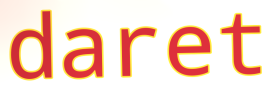
daret